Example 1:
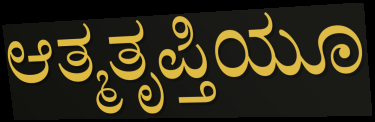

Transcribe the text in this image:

ಆತ್ಮತೃಪ್ತಿಯೂ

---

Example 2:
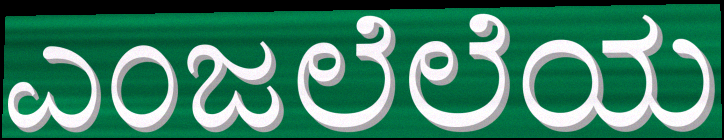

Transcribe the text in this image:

ಎಂಜಲೆಲೆಯ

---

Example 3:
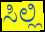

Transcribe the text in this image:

ಸಿಲ್ಲಿ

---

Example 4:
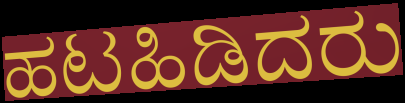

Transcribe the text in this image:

ಹಟಹಿಡಿದರು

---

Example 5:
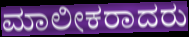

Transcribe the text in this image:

ಮಾಲೀಕರಾದರು